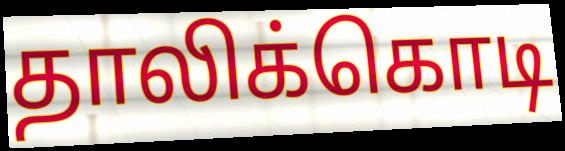
தாலிக்கொடி